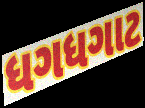
ધગધગાટ